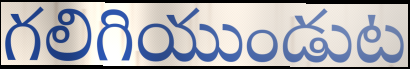
గలిగియుండుట